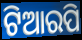
ଟିଆରପି